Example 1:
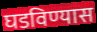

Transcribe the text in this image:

घडविण्यास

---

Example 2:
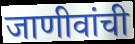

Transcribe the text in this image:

जाणीवांची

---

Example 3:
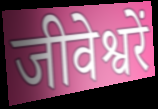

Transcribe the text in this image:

जीवेश्वरें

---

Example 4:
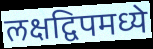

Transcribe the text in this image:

लक्षद्विपमध्ये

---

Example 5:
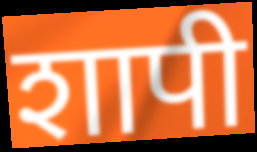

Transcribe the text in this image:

शापी